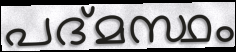
പദ്മസ്ഥം